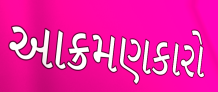
આક્રમણકારો